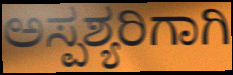
ಅಸ್ಪಶ್ಯರಿಗಾಗಿ